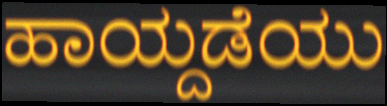
ಹಾಯ್ದಡೆಯು